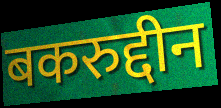
बकरुद्दीन